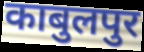
काबुलपुर